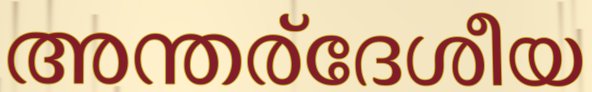
അന്തര്ദേശീയ